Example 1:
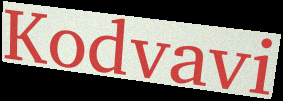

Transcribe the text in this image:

Kodvavi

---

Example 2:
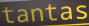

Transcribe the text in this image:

tantas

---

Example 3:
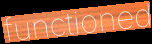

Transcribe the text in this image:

functioned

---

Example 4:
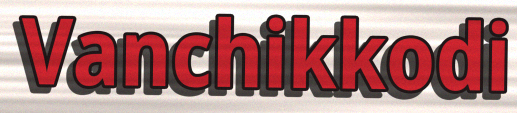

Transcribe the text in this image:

Vanchikkodi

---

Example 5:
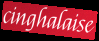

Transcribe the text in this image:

cinghalaise